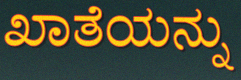
ಖಾತೆಯನ್ನು